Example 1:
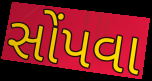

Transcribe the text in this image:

સોંપવા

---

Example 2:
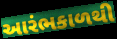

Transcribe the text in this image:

આરંભકાળથી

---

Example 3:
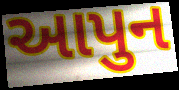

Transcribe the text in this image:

આપુન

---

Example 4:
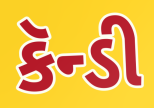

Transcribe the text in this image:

કૅન્ડી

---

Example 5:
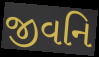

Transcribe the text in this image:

જીવનિ